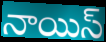
నాయిస్